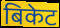
बिकेट